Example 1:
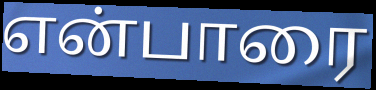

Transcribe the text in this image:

என்பாரை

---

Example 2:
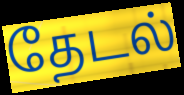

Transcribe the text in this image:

தேடல்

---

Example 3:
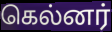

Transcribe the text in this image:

கெல்னர்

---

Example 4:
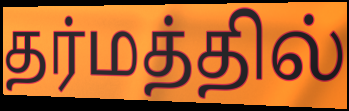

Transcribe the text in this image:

தர்மத்தில்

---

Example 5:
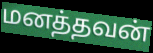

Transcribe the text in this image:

மனத்தவன்